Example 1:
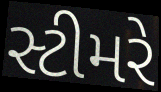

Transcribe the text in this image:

સ્ટીમરે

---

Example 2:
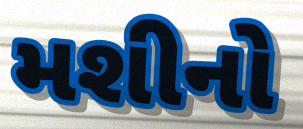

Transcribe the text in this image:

મશીનો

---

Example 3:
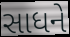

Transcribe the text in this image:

સાધને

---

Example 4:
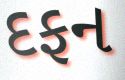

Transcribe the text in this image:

દફન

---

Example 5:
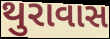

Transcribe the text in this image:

થુરાવાસ